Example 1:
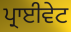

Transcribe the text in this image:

ਪ੍ਰਾਈਵੇਟ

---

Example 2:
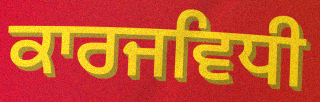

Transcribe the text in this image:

ਕਾਰਜਵਿਧੀ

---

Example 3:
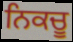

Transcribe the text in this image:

ਨਿਕਚੂ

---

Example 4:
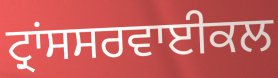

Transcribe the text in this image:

ਟ੍ਰਾਂਸਸਰਵਾਈਕਲ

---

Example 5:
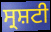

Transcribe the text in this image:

ਸ੍ਰਸ਼ਟੀ